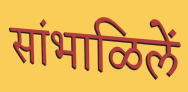
सांभाळिलें